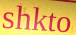
shkto